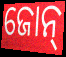
ଜୋନ୍